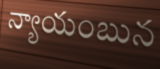
న్యాయంబున